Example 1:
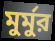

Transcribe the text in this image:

মুর্মুর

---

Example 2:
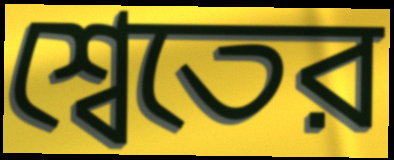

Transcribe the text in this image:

শ্বেতের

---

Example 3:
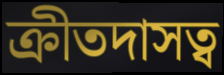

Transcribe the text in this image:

ক্রীতদাসত্ব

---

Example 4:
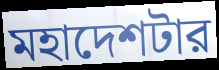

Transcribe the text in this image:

মহাদেশটার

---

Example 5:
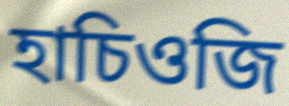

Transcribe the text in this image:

হাচিওজি